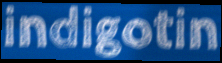
indigotin